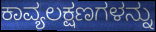
ಕಾವ್ಯಲಕ್ಷಣಗಳನ್ನು